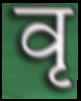
वृ